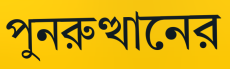
পুনরুত্থানের